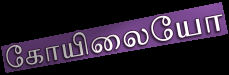
கோயிலையோ